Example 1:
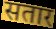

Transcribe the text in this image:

सतार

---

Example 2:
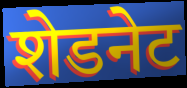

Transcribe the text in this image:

शेडनेट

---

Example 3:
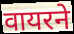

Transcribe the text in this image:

वायरने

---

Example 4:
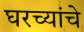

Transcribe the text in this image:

घरच्यांचे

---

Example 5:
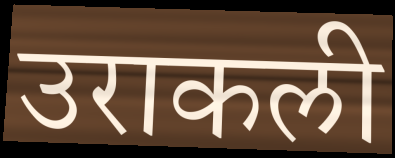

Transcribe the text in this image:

उराकली